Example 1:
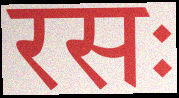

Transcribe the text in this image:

रसः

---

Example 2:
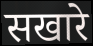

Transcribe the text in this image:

सखारे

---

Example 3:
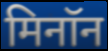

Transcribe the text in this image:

मिनॉन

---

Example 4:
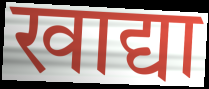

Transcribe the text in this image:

खाद्या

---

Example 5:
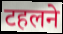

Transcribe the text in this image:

टहलने